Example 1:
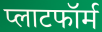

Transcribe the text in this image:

प्लाटफॉर्म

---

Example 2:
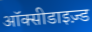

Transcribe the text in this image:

ऑक्सीडाइज़्ड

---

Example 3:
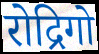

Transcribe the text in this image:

रोद्रिगो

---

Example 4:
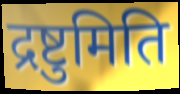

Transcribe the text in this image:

द्रष्टुमिति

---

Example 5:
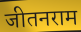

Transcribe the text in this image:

जीतनराम